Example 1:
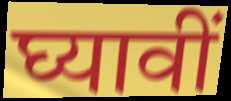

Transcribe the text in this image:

घ्यावीं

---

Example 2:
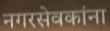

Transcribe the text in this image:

नगरसेवकांना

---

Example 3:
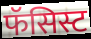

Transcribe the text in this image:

फॅसिस्ट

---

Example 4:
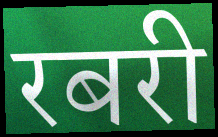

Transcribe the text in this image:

रबरी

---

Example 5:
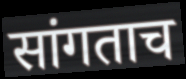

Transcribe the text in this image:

सांगताच